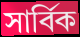
সার্বিক